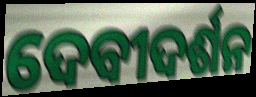
ଦେବୀଦର୍ଶନ